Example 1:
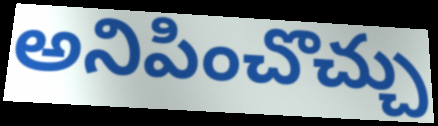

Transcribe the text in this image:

అనిపించొచ్చు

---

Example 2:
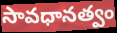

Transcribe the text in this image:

సావధానత్వం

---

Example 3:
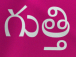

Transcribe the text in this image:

గుత్తి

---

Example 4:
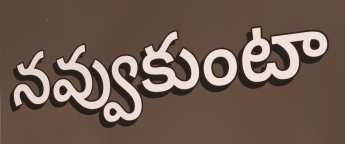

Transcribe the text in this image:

నవ్వుకుంటా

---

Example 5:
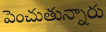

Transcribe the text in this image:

పెంచుతున్నారు